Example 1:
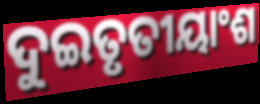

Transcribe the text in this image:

ଦୁଇତୃତୀୟାଂଶ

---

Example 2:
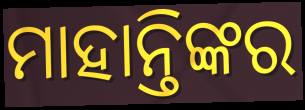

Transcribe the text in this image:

ମାହାନ୍ତିଙ୍କର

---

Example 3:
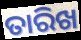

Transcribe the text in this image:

ତାରିଖ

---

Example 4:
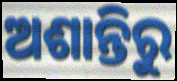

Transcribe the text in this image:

ଅଶାନ୍ତିରୁ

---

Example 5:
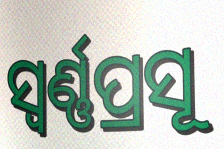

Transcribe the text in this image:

ସ୍ବର୍ଣ୍ଣପ୍ରସୂ